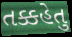
તક્કહેતુ